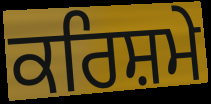
ਕਰਿਸ਼ਮੇ